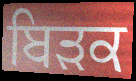
ਬਿੜਕ